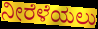
ನೀರೆಳೆಯಲು